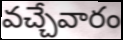
వచ్చేవారం